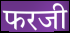
फरजी